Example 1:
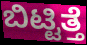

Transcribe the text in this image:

ಬಿಟ್ಟಿತ್ತೆ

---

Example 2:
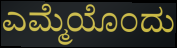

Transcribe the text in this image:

ಎಮ್ಮೆಯೊಂದು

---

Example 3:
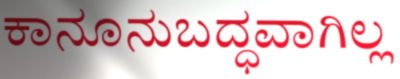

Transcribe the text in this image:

ಕಾನೂನುಬದ್ಧವಾಗಿಲ್ಲ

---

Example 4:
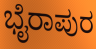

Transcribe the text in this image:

ಭೈರಾಪುರ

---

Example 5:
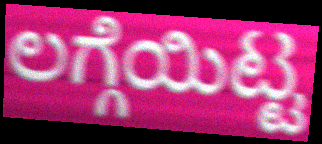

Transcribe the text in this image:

ಲಗ್ಗೆಯಿಟ್ಟ